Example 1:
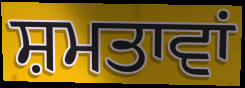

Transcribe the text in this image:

ਸ਼ਮਤਾਵਾਂ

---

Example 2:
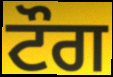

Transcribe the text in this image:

ਟੌਗ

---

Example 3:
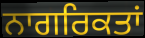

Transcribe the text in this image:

ਨਾਗਰਿਕਤਾਂ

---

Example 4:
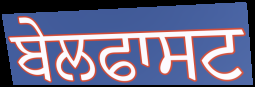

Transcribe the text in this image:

ਬੇਲਫਾਸਟ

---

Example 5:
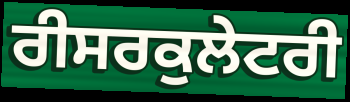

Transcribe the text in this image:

ਰੀਸਰਕੁਲੇਟਰੀ